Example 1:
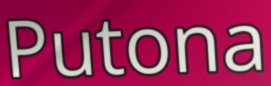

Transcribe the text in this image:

Putona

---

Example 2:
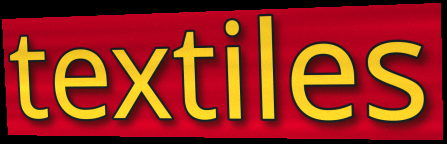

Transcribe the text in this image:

textiles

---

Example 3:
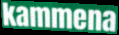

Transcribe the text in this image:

kammena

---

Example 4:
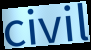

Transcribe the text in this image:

civil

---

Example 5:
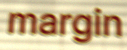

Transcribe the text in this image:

margin